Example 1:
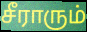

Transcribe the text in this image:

சீராரும்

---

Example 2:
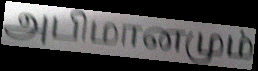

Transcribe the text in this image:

அபிமானமும்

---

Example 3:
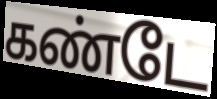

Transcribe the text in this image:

கண்டே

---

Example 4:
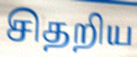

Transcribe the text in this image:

சிதறிய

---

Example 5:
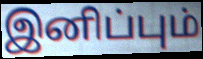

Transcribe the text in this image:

இனிப்பும்